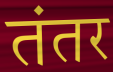
तंतर